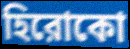
হিরোকো